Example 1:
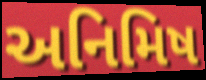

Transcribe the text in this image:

અનિમિષ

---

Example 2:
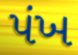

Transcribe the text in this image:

પંખ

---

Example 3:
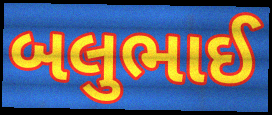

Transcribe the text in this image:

બલુભાઈ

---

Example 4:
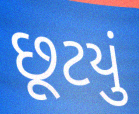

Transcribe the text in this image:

છૂટયું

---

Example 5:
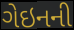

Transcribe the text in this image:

ગેઇનની